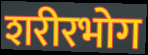
शरीरभोग